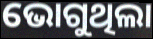
ଭୋଗୁଥିଲା